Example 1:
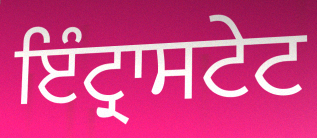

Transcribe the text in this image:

ਇੰਟ੍ਰਾਸਟੇਟ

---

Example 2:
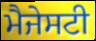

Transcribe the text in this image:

ਮੈਜੇਸਟੀ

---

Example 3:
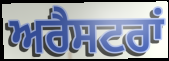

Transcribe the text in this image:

ਅਰੈਸਟਰਾਂ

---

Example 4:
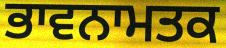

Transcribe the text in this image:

ਭਾਵਨਾਮਤਕ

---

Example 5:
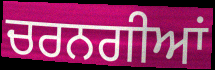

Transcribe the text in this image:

ਚਰਨਗੀਆਂ